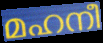
മഹനീ